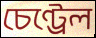
চেণ্ট্ৰেল